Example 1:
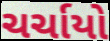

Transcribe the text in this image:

ચર્ચાયો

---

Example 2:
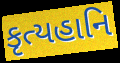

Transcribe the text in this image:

કૃત્યહાનિ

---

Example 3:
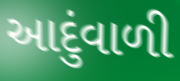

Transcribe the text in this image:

આદુંવાળી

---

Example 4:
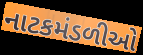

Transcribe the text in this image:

નાટકમંડળીઓ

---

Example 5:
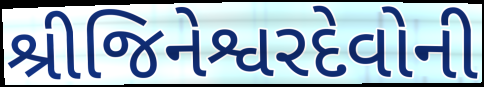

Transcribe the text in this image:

શ્રીજિનેશ્વરદેવોની